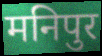
मनिपुर